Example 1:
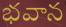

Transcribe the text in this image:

భవాన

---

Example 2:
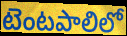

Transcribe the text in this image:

టెంటపాలిలో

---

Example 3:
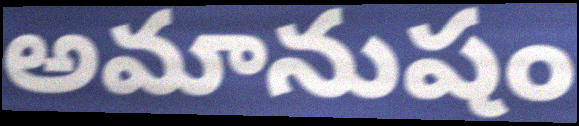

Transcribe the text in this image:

అమానుషం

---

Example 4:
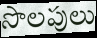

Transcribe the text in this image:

సొలపులు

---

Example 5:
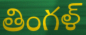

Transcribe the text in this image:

తింగళ్